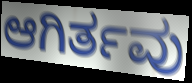
ಆಗಿರ್ತವು